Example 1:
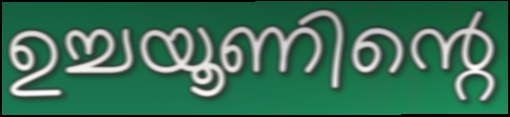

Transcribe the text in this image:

ഉച്ചയൂണിന്റെ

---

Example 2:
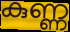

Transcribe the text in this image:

കുണ്ണ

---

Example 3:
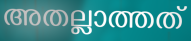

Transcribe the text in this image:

അതല്ലാത്തത്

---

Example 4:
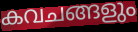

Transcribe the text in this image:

കവചങ്ങളും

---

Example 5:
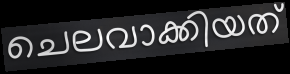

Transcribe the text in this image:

ചെലവാക്കിയത്